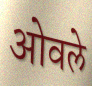
ओवले